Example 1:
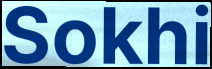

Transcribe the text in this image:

Sokhi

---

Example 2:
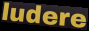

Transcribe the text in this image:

ludere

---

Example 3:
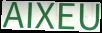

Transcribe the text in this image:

AIXEU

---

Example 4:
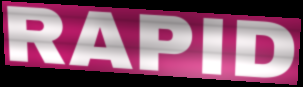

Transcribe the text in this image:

RAPID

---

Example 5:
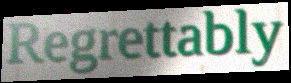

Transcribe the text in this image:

Regrettably